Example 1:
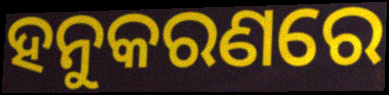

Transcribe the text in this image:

ହନୁକରଣରେ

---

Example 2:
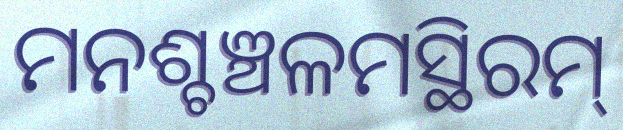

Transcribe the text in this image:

ମନଶ୍ଚଞ୍ଚଳମସ୍ଥିରମ୍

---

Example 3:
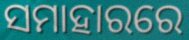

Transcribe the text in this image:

ସମାହାରରେ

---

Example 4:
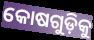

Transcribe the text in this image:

କୋଷଗୁଡ଼ିକୁ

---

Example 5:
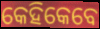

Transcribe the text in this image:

କେହିକେବେ